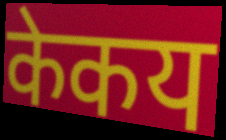
केकय